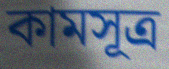
কামসূত্ৰ